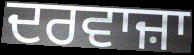
ਦਰਵਾਜ਼ਾ